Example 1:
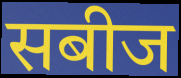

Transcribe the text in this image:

सबीज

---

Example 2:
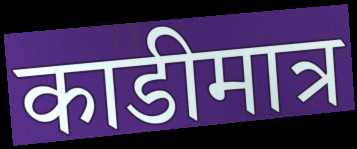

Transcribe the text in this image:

काडीमात्र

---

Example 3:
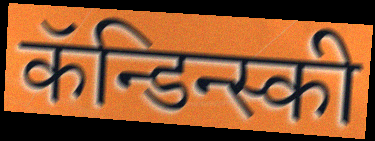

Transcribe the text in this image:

कॅन्डिन्स्की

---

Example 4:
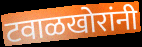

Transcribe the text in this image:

टवाळखोरांनी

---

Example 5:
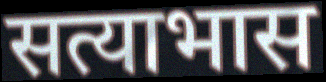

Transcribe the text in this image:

सत्याभास